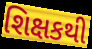
શિક્ષકથી